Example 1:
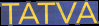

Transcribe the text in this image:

TATVA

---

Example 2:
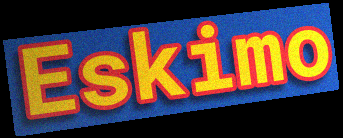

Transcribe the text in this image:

Eskimo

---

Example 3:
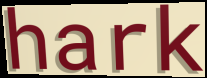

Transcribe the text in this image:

hark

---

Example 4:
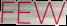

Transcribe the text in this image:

FEW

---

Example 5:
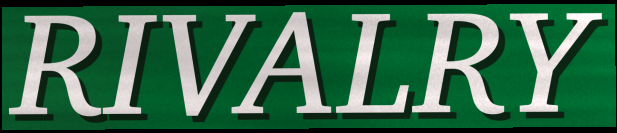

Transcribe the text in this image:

RIVALRY